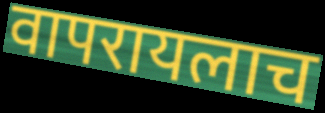
वापरायलाच